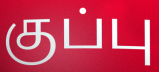
குப்பு